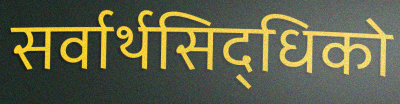
सर्वार्थसिद्धिको